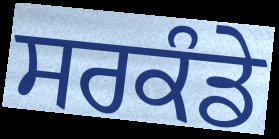
ਸਰਕੰਡੇ